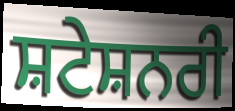
ਸ਼ਟੇਸ਼ਨਰੀ